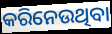
କରିନେଉଥିବା